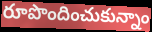
రూపొందించుకున్నాం